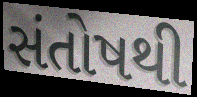
સંતોષથી